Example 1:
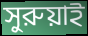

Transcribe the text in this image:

সুরুয়াই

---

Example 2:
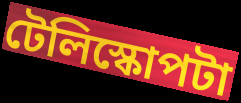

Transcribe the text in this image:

টেলিস্কোপটা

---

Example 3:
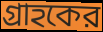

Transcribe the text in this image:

গ্রাহকের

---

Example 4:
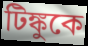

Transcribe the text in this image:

টিঙ্কুকে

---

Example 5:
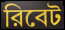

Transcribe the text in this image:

রিবেট